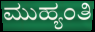
ಮುಹ್ಯಂತಿ